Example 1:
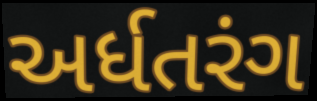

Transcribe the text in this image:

અર્ધતરંગ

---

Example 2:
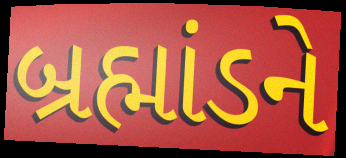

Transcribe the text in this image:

બ્રહ્માંડને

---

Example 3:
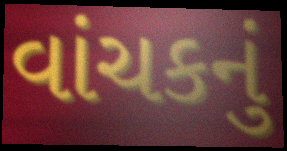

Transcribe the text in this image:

વાંચકનું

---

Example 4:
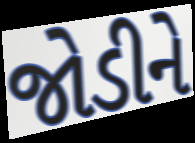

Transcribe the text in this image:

જોડીને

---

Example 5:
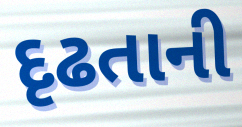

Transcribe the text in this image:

દૃઢતાની